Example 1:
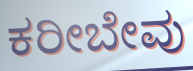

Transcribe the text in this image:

ಕರೀಬೇವು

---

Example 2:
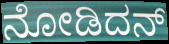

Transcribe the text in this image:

ನೋಡಿದನ್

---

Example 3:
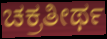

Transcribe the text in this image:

ಚಕ್ರತೀರ್ಥ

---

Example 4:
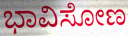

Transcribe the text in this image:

ಭಾವಿಸೋಣ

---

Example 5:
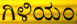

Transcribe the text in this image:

ಗಿಳಿಯಂ